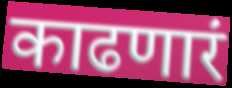
काढणारं